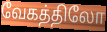
வேகத்திலோ